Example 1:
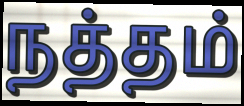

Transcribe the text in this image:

நத்தம்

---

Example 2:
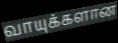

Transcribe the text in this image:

வாயுக்களான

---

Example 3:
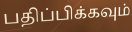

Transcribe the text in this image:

பதிப்பிக்கவும்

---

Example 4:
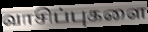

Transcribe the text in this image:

வாசிப்புகளை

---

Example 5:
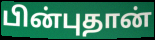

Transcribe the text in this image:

பின்புதான்